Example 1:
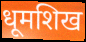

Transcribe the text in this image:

धूमशिख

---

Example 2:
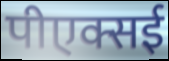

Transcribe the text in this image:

पीएक्सई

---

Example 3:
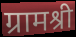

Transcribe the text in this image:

ग्रामश्री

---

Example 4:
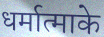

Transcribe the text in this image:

धर्मात्माके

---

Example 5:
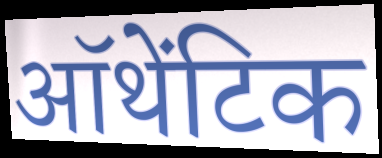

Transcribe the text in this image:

ऑथेंटिक